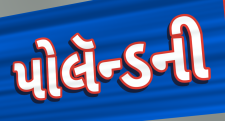
પોલૅન્ડની